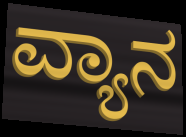
ವ್ಯಾನ